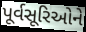
પૂર્વસૂરિઓને